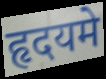
हृदयमे